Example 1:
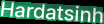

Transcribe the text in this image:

Hardatsinh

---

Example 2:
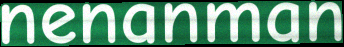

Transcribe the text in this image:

nenanman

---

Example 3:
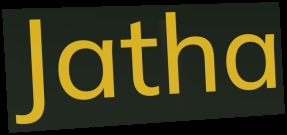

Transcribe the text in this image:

Jatha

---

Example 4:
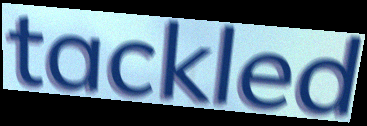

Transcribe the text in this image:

tackled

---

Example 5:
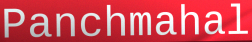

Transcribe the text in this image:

Panchmahal